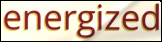
energized